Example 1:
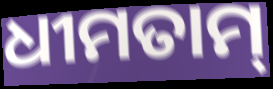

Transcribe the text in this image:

ଧୀମତାମ୍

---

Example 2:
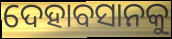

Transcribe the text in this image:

ଦେହାବସାନକୁ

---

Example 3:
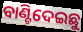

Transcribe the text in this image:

ବାଣ୍ଟିଦେଇଛୁ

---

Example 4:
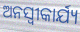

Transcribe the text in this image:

ଅନସ୍ୱୀକାର୍ଯ୍ୟ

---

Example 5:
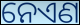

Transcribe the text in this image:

ନେଏଣ